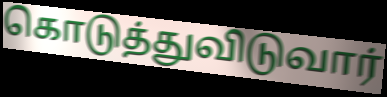
கொடுத்துவிடுவார்